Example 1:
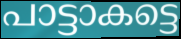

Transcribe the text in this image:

പാട്ടാകട്ടെ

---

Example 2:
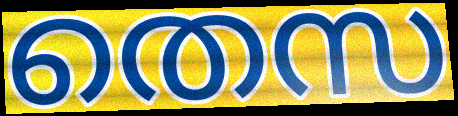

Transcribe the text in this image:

തെസ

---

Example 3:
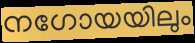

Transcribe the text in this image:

നഗോയയിലും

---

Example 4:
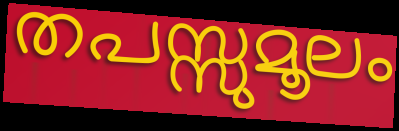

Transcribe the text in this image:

തപസ്സുമൂലം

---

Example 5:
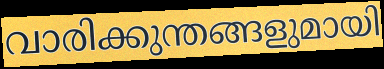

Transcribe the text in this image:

വാരിക്കുന്തങ്ങളുമായി